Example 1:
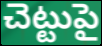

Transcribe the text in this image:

చెట్టుపై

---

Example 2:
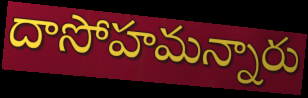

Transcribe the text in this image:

దాసోహమన్నారు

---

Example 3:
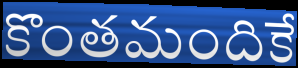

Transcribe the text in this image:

కొంతమందికే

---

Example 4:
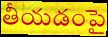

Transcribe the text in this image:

తీయడంపై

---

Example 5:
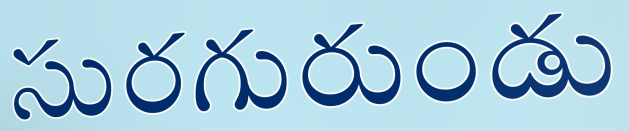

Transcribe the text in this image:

సురగురుండు